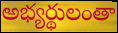
అభ్యర్థులంతా